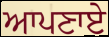
ਆਪਣਾਏ